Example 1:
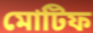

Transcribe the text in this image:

মোটিফ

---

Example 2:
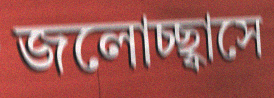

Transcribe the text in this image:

জলোচ্ছ্বাসে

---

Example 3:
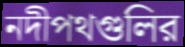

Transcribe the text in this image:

নদীপথগুলির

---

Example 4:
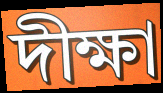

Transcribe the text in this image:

দীক্ষা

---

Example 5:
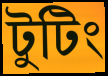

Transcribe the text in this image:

টুটিং